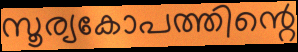
സൂര്യകോപത്തിന്റെ